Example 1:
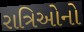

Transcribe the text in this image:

રાત્રિઓનો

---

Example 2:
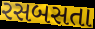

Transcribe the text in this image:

રસબસતા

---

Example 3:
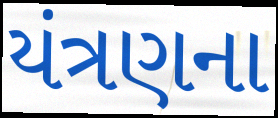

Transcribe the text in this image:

યંત્રણના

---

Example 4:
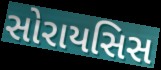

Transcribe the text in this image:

સોરાયસિસ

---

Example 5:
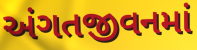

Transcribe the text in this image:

અંગતજીવનમાં